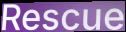
Rescue